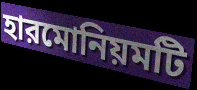
হারমোনিয়মটি